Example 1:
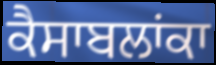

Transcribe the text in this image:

ਕੈਸਾਬਲਾਂਕਾ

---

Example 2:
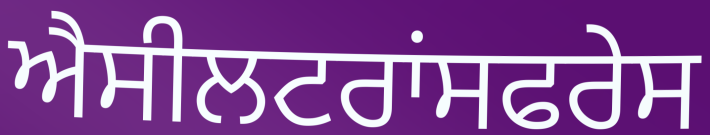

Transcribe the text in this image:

ਐਸੀਲਟਰਾਂਸਫਰੇਸ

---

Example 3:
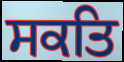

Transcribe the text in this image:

ਸਕਤਿ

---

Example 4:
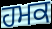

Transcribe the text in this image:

ਹਮਕ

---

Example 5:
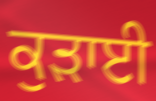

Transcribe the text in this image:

ਕੁੜਾਈ